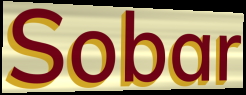
Sobar